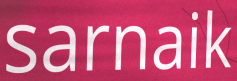
sarnaik